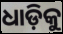
ଧାଡ଼ିକୁ